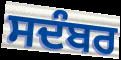
ਸਦੰਬਰ